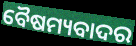
ବୈଷମ୍ୟବାଦର